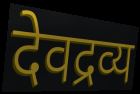
देवद्रव्य